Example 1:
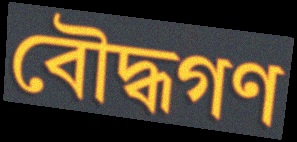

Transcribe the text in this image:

বৌদ্ধগণ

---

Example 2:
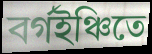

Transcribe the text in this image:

বর্গইঞ্চিতে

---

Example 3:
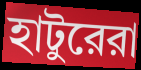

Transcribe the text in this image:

হাটুরেরা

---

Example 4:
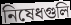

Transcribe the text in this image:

নিষেধগুলি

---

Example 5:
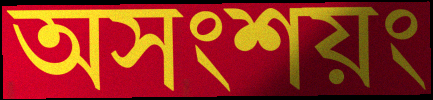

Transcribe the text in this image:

অসংশয়ং